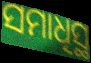
ସମାଧିସ୍ଥ